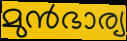
മുൻഭാര്യ